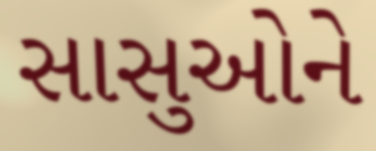
સાસુઓને